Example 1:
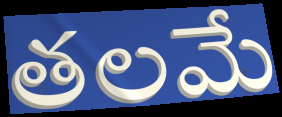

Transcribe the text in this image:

తలమే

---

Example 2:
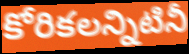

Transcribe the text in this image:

కోరికలన్నిటినీ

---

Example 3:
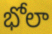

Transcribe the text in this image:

భోలా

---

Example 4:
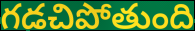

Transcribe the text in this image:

గడచిపోతుంది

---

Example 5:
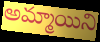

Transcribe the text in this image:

అమ్మాయిని